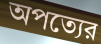
অপত্যের